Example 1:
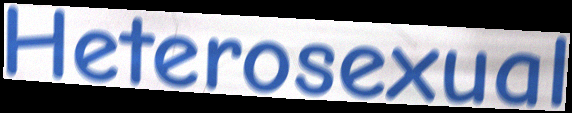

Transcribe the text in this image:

Heterosexual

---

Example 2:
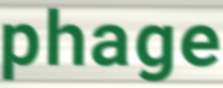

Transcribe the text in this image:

phage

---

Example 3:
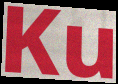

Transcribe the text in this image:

Ku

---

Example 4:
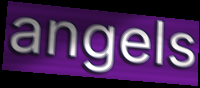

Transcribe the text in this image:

angels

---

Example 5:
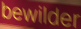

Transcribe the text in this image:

bewilder